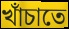
খাঁচাতে